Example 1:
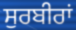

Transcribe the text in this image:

ਸੁਰਬੀਰਾਂ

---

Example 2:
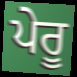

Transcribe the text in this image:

ਪੇਰੂ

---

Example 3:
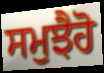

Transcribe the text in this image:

ਸਮੁਝੈਹੋ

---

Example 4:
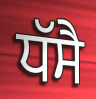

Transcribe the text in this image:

ਧੱਸੈ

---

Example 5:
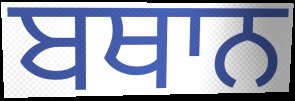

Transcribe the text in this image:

ਬਥਾਨ